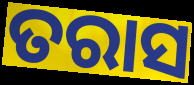
ତରାସ